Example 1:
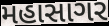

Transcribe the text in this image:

મહાસાગર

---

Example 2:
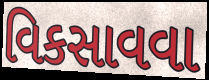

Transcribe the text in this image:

વિકસાવવા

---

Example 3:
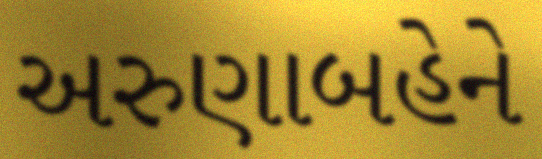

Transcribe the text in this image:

અરુણાબહેને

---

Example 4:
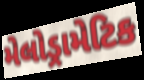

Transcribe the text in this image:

મેલોડ્રામેટિક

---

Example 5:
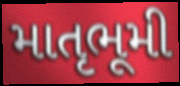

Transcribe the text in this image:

માતૃભૂમી